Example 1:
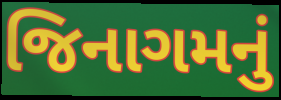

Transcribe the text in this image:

જિનાગમનું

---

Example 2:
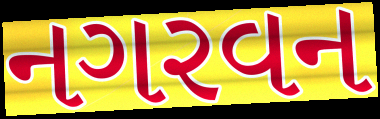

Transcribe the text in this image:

નગરવન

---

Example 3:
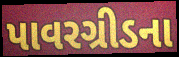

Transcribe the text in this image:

પાવરગ્રીડના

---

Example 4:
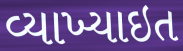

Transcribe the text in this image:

વ્યાખ્યાઇત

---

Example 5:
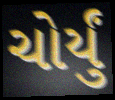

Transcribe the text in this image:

ચોર્યું